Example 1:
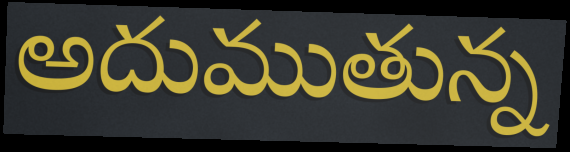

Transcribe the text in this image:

అదుముతున్న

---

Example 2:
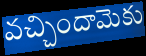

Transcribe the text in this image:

వచ్చిందామెకు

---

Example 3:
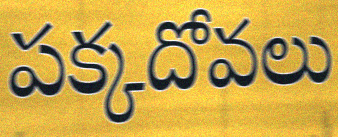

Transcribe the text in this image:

పక్కదోవలు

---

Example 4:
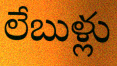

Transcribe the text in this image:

లేబుళ్లు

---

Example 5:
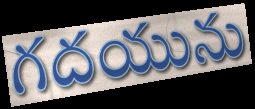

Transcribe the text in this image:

గదయును